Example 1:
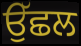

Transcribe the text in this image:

ਉੱਛਲ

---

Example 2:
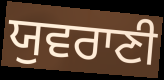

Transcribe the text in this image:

ਯੁਵਰਾਣੀ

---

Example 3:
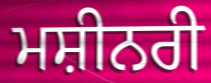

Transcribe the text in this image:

ਮਸ਼ੀਨਰੀ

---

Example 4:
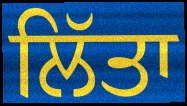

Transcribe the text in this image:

ਲਿੱਤਾ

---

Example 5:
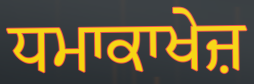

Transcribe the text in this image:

ਧਮਾਕਾਖੇਜ਼